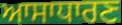
ਆਸਾਧਾਰਣ